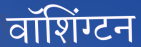
वॉशिंग्टन